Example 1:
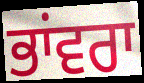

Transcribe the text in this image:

ਭਾਂਵਰਾ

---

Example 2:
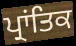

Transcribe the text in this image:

ਪ੍ਰਾਂਤਿਕ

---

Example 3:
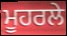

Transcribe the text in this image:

ਮੂਹਰਲੇ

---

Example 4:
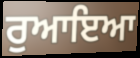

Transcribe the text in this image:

ਰੁਆਇਆ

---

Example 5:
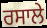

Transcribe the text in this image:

ਰਸਾਲੇ